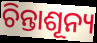
ଚିନ୍ତାଶୂନ୍ୟ